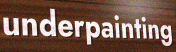
underpainting